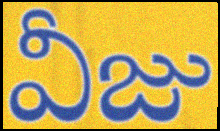
వీజు